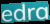
edra